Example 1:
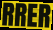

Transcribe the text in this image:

RRER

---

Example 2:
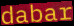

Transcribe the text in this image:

dabar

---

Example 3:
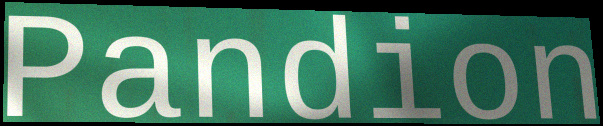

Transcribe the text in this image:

Pandion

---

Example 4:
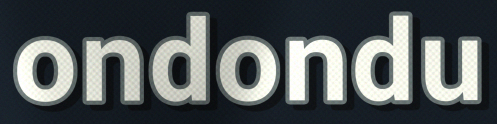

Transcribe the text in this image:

ondondu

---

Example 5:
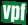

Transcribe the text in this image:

vpf